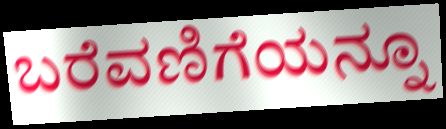
ಬರೆವಣಿಗೆಯನ್ನೂ